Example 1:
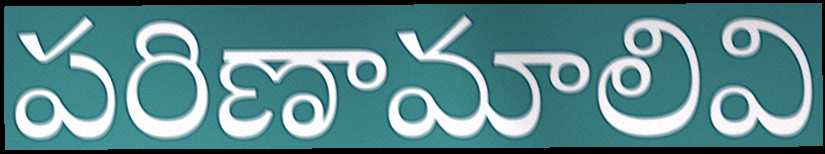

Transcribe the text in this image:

పరిణామాలివి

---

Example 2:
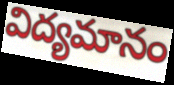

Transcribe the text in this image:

విద్యమానం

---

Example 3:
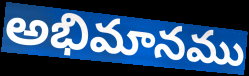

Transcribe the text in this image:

అభిమానము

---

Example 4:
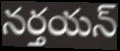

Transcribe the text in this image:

నర్తయన్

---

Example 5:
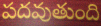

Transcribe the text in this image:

పదవుతుంది